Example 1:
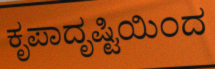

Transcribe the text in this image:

ಕೃಪಾದೃಷ್ಟಿಯಿಂದ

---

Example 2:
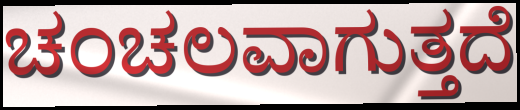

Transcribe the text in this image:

ಚಂಚಲವಾಗುತ್ತದೆ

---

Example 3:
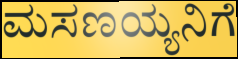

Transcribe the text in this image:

ಮಸಣಯ್ಯನಿಗೆ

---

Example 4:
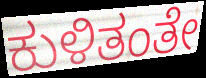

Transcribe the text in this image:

ಕುಳಿತಂತೇ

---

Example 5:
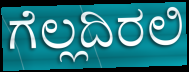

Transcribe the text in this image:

ಗೆಲ್ಲದಿರಲಿ